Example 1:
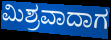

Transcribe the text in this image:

ಮಿಶ್ರವಾದಾಗ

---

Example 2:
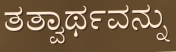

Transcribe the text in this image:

ತತ್ವಾರ್ಥವನ್ನು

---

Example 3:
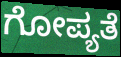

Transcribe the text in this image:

ಗೋಪ್ಯತೆ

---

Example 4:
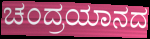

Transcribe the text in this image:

ಚಂದ್ರಯಾನದ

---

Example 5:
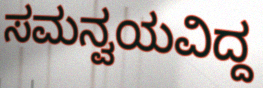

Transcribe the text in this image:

ಸಮನ್ವಯವಿದ್ದ